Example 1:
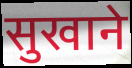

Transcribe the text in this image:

सुखाने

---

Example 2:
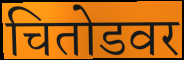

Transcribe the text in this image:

चितोडवर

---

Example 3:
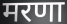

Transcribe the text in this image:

मरणा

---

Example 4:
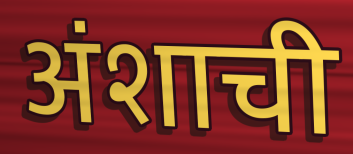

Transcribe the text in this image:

अंशाची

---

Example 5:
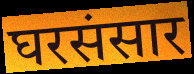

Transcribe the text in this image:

घरसंसार